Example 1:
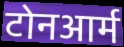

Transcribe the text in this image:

टोनआर्म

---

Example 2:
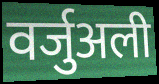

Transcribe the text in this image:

वर्जुअली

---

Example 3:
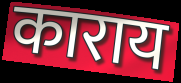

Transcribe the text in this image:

काराय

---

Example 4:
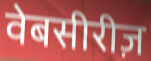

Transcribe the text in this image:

वेबसीरीज़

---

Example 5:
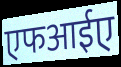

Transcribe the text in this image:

एफआईए